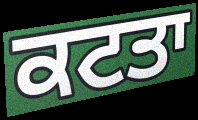
ਕਟਤਾ